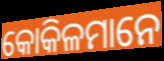
କୋକିଳମାନେ